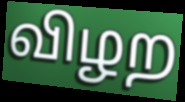
விழற